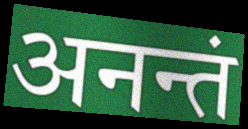
अनन्तं